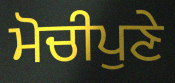
ਮੋਚੀਪੁਣੇ